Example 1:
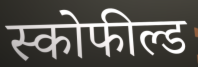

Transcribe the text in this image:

स्कोफील्ड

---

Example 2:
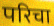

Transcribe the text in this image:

परिचा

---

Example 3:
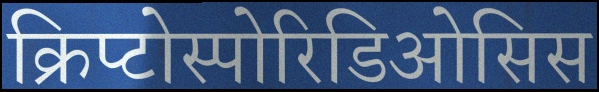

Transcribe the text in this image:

क्रिप्टोस्पोरिडिओसिस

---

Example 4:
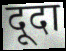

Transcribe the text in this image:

दूदा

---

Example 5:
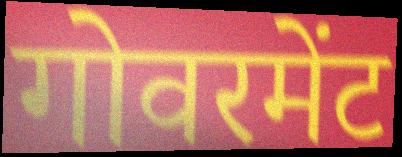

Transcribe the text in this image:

गोवरमेंट